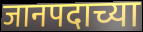
जानपदाच्या